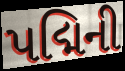
પદ્મિની